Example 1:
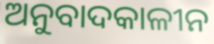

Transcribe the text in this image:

ଅନୁବାଦକାଳୀନ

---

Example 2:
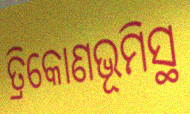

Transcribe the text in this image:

ତ୍ରିକୋଣଭୂମିସ୍ଥ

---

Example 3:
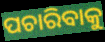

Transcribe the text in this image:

ପଚାରିବାକୁ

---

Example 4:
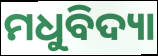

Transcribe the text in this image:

ମଧୁବିଦ୍ୟା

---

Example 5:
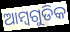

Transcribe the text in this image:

ଆମ୍ବଗୁଡିକ